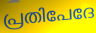
പ്രതിപേദേ